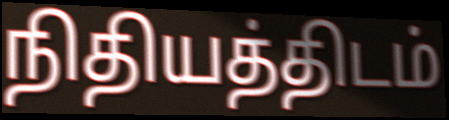
நிதியத்திடம்